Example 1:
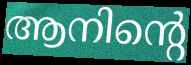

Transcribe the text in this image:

ആനിന്റെ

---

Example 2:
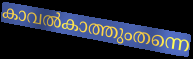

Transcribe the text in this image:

കാവൽകാത്തുംതന്നെ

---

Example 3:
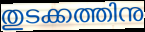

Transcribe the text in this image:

തുടക്കത്തിനു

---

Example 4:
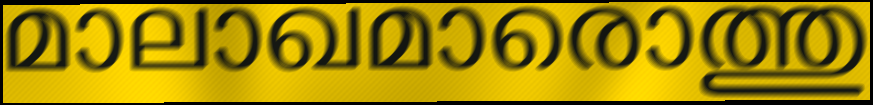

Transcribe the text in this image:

മാലാഖമാരൊത്തു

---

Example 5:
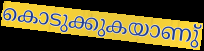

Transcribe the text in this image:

കൊടുക്കുകയാണു്